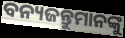
ବନ୍ୟଜନ୍ତୁମାନଙ୍କୁ